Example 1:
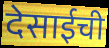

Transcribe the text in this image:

देसाईची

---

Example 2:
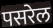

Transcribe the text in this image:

पसरेल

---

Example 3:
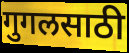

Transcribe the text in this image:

गुगलसाठी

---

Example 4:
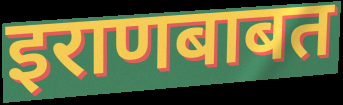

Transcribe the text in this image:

इराणबाबत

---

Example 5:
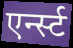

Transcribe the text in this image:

एर्न्स्ट